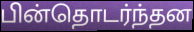
பின்தொடர்ந்தன